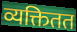
व्यक्तितत